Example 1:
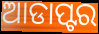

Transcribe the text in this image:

ଆଡାପ୍ଟର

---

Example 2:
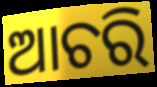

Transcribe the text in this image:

ଆଚରି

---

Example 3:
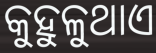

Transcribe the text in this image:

କୁହୁଳୁଥାଏ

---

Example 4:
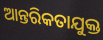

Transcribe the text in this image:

ଆନ୍ତରିକତାଯୁକ୍ତ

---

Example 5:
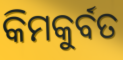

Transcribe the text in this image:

କିମକୁର୍ବତ